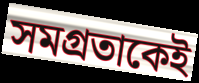
সমগ্রতাকেই